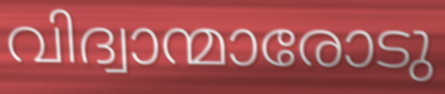
വിദ്വാന്മാരോടു